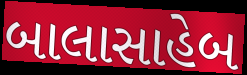
બાલાસાહેબ